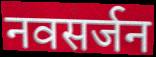
नवसर्जन